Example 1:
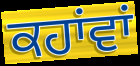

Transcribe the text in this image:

ਕਹਾਂਵਾਂ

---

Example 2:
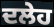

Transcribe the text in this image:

ਦਲੇਹ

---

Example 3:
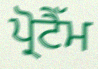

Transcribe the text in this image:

ਪ੍ਰੋਟੈੱਮ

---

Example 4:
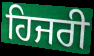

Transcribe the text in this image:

ਹਿਜਰੀ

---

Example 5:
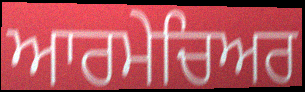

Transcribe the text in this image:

ਆਰਮੇਚਿਅਰ